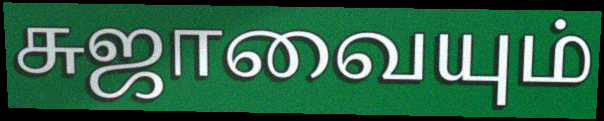
சுஜாவையும்